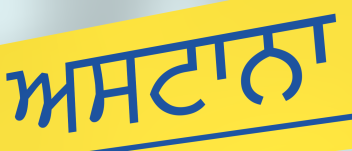
ਅਸਟਾਨਾ